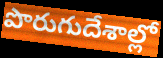
పొరుగుదేశాల్లో